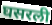
घसरली